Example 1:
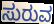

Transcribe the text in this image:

ಸುರುವ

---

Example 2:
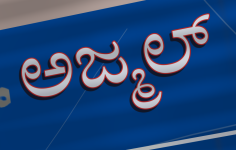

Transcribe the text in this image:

ಅಜ್ಮಲ್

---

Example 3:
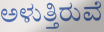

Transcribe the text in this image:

ಅಳುತ್ತಿರುವೆ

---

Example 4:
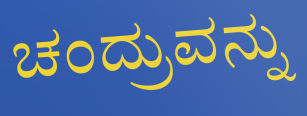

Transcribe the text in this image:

ಚಂದ್ರುವನ್ನು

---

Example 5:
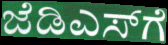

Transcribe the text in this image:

ಜೆಡಿಎಸ್‌ಗೆ